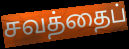
சவத்தைப்